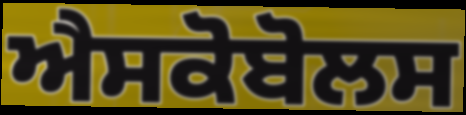
ਐਸਕੋਬੋਲਸ